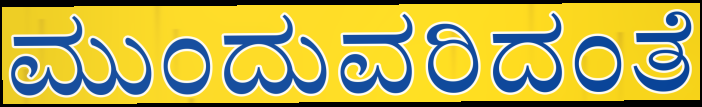
ಮುಂದುವರಿದಂತೆ